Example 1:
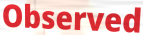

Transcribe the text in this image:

Observed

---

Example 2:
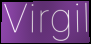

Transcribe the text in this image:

Virgil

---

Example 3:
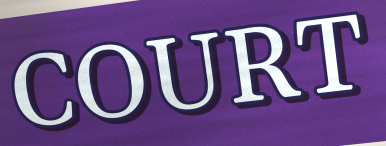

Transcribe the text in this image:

COURT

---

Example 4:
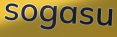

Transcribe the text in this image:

sogasu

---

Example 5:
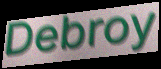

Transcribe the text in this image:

Debroy